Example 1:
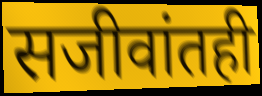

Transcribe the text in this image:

सजीवांतही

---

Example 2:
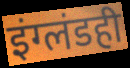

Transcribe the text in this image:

इंग्लंडही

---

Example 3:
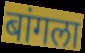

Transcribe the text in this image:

बांगला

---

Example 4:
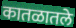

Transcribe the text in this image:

कातळातले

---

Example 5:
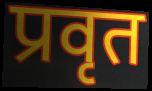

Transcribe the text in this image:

प्रवृत